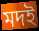
মদই